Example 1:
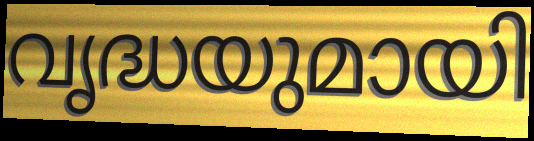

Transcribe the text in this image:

വൃദ്ധയുമായി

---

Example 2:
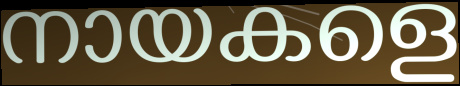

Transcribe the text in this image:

നായകളെ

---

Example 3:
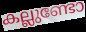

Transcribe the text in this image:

കല്ലുണ്ടോ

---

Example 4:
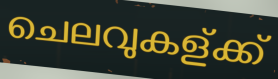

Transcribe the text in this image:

ചെലവുകള്ക്ക്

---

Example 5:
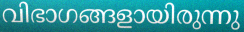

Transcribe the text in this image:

വിഭാഗങ്ങളായിരുന്നു